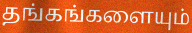
தங்கங்களையும்